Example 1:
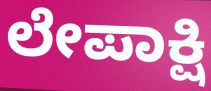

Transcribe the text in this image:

ಲೇಪಾಕ್ಷಿ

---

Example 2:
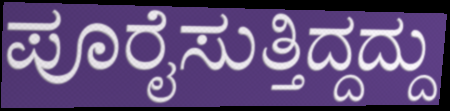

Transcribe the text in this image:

ಪೂರೈಸುತ್ತಿದ್ದದ್ದು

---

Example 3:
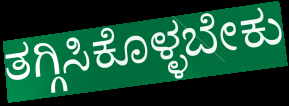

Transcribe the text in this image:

ತಗ್ಗಿಸಿಕೊಳ್ಳಬೇಕು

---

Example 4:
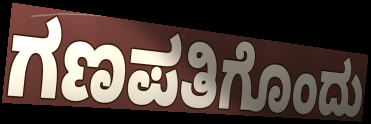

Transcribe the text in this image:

ಗಣಪತಿಗೊಂದು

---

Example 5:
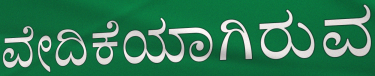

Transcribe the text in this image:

ವೇದಿಕೆಯಾಗಿರುವ